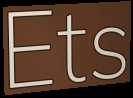
Ets